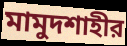
মামুদশাহীর